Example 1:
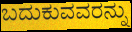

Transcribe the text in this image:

ಬದುಕುವವರನ್ನು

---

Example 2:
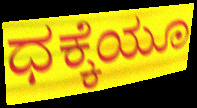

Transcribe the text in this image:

ಧಕ್ಕೆಯೂ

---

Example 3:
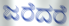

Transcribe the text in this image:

ಜರೆದರೆ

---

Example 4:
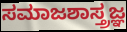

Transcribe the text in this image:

ಸಮಾಜಶಾಸ್ತ್ರಜ್ಞ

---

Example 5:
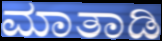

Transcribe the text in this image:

ಮಾತಾಡಿ